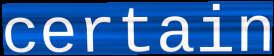
certain